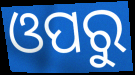
ଓପରୁ